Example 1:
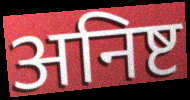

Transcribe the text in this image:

अनिष्ट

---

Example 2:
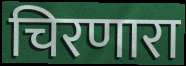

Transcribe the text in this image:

चिरणारा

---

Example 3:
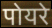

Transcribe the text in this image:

पोयरे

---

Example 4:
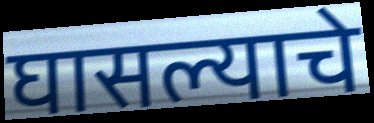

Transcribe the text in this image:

घासल्याचे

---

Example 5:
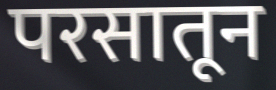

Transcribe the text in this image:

परसातून